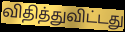
விதித்துவிட்டது